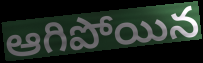
ఆగిపోయిన